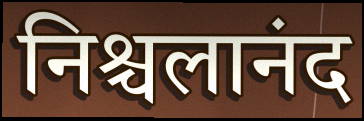
निश्चलानंद